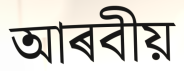
আৰবীয়